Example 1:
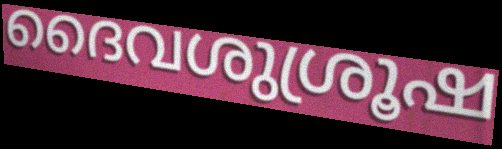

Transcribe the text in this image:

ദൈവശുശ്രൂഷ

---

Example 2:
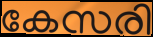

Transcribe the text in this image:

കേസരി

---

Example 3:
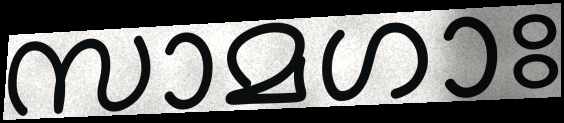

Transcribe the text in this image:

സാമഗാഃ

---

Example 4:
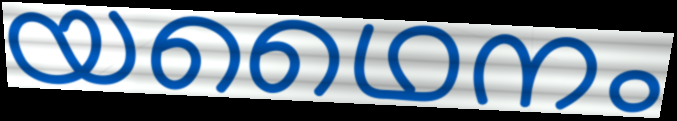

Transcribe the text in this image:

യഥൈനം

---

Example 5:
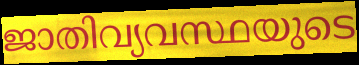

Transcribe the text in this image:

ജാതിവ്യവസ്ഥയുടെ